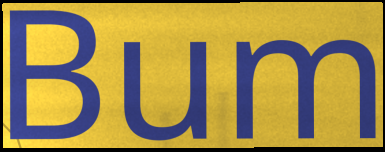
Bum